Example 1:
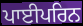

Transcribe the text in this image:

ਪਾਈਪਰਿਨ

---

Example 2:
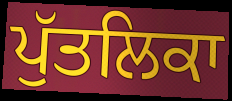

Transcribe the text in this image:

ਪੁੱਤਲਿਕਾ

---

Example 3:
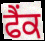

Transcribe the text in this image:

ਫੈਂਕ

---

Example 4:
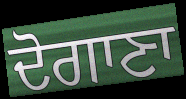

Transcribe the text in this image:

ਦੋਗਾਣਾ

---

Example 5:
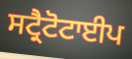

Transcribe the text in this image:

ਸਟ੍ਰੈਟੋਟਾਈਪ